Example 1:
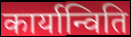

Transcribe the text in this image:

कार्यान्विति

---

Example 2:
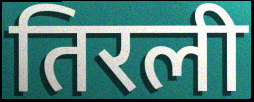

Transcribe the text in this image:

तिरली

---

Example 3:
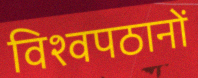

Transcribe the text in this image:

विश्वपठानों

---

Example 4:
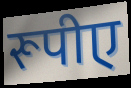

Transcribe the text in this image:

रूपीए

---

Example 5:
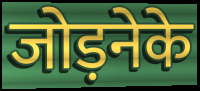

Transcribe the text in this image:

जोड़नेके